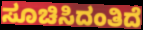
ಸೂಚಿಸಿದಂತಿದೆ